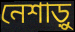
নেশাড়ু